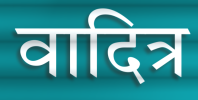
वादित्र